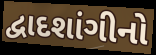
દ્વાદશાંગીનો